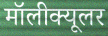
मॉलीक्यूलर